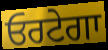
ਓਰਟੇਗਾ